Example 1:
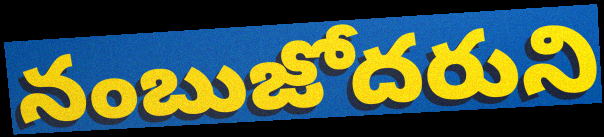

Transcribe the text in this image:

నంబుజోదరుని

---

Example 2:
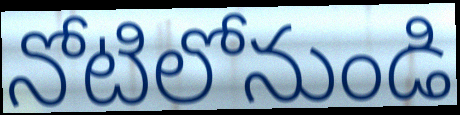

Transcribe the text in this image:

నోటిలోనుండి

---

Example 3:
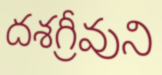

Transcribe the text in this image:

దశగ్రీవుని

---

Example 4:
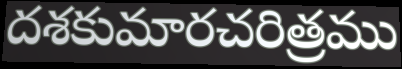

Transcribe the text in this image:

దశకుమారచరిత్రము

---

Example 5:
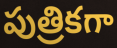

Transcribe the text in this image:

పుత్రికగా